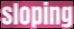
sloping